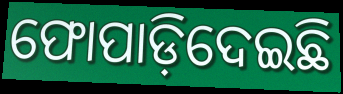
ଫୋପାଡ଼ିଦେଇଛି